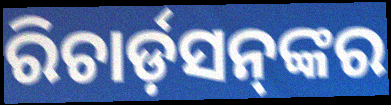
ରିଚାର୍ଡ଼ସନ୍‌ଙ୍କର